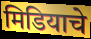
मिडियाचे